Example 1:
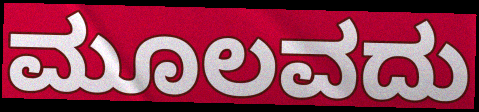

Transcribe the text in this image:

ಮೂಲವದು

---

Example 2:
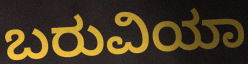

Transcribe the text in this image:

ಬರುವಿಯಾ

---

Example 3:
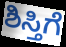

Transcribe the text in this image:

ಶಿಸ್ತಿಗೆ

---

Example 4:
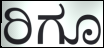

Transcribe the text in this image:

ರಿಗೂ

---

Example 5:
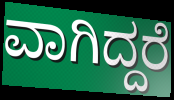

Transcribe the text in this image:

ವಾಗಿದ್ದರೆ